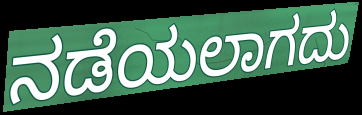
ನಡೆಯಲಾಗದು